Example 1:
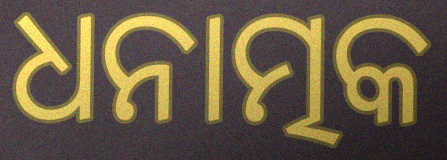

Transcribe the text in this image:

ଧନାତ୍ମକ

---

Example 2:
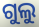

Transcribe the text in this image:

ଗୁଲୁ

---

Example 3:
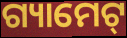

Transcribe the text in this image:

ଗ୍ୟାମେଟ୍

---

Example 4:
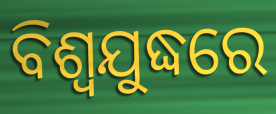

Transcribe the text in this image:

ବିଶ୍ବଯୁଦ୍ଧରେ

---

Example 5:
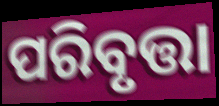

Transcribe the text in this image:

ପରିବୃତ୍ତା